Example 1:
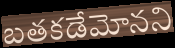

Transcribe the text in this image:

బతకడేమోనని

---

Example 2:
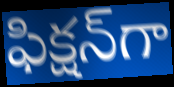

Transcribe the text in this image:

ఫిక్షన్‌గా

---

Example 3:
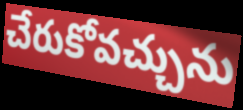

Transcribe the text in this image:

చేరుకోవచ్చును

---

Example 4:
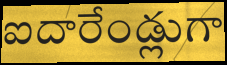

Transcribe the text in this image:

ఐదారేండ్లుగా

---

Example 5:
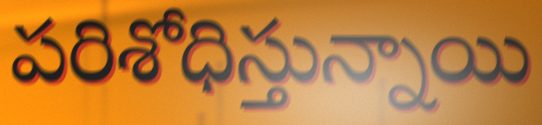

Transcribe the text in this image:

పరిశోధిస్తున్నాయి